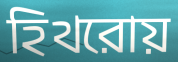
হিথরোয়